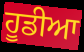
ਹੂਡੀਆ